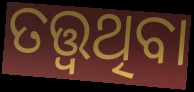
ତତ୍ତ୍ୱଥିବା